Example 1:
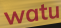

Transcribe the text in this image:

watu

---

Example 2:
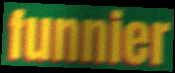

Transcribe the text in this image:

funnier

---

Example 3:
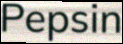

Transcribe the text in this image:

Pepsin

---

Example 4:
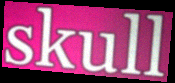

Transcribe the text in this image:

skull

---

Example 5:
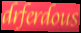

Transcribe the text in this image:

drferdous